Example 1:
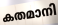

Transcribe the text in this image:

കതമാനി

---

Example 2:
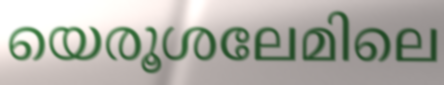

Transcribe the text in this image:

യെരൂശലേമിലെ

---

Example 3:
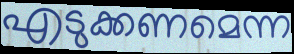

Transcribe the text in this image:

എടുക്കണമെന്ന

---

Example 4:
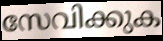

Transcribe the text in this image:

സേവിക്കുക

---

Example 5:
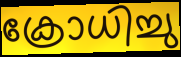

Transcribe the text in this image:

ക്രോധിച്ചു